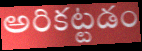
అరికట్టడం